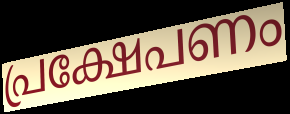
പ്രക്ഷേപണം